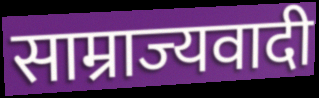
साम्राज्‍यवादी